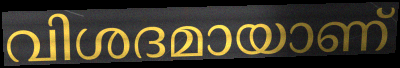
വിശദമായാണ്